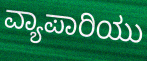
ವ್ಯಾಪಾರಿಯು